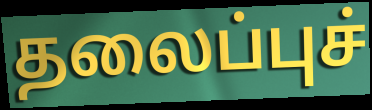
தலைப்புச்